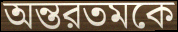
অন্তরতমকে